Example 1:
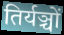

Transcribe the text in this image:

तिर्यञ्चों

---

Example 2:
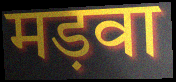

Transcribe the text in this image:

मड़वा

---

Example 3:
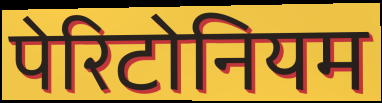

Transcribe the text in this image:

पेरिटोनियम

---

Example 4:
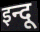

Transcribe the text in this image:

इन्दू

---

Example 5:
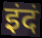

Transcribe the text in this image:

इंदं